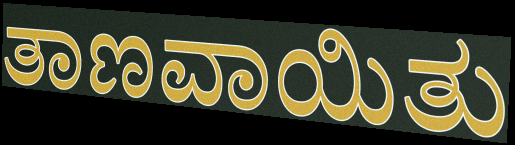
ತಾಣವಾಯಿತು